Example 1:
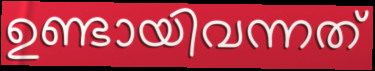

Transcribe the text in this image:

ഉണ്ടായിവന്നത്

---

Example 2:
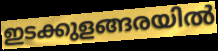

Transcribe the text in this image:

ഇടക്കുളങ്ങരയിൽ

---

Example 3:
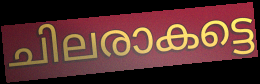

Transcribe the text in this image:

ചിലരാകട്ടെ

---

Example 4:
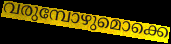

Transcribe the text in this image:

വരുമ്പോഴുമൊക്കെ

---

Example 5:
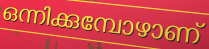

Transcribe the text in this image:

ഒന്നിക്കുമ്പോഴാണ്